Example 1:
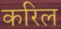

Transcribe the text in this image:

करिल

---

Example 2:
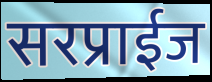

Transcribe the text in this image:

सरप्राईज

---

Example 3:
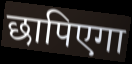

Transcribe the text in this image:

छापिएगा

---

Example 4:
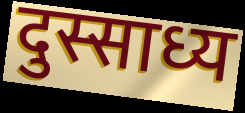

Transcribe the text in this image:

दुस्साध्य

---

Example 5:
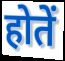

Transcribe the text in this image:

होतें